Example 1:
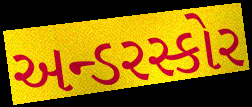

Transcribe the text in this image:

અન્ડરસ્કોર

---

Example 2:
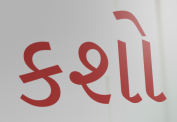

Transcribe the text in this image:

કશો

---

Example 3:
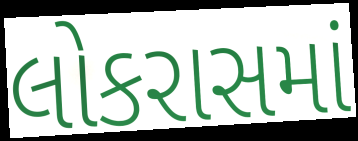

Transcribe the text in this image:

લોકરાસમાં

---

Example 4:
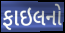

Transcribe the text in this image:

ફાઇલનો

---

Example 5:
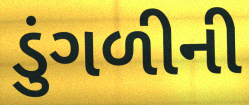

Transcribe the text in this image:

ડુંગળીની